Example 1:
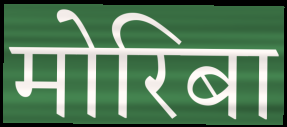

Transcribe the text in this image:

मोरिबा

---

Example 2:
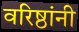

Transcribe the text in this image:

वरिष्ठांनी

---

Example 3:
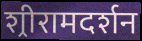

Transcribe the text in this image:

श्रीरामदर्शन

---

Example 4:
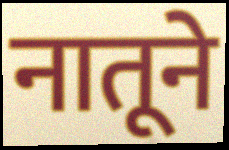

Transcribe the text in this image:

नातूने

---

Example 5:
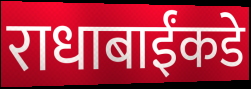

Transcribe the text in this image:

राधाबाईंकडे